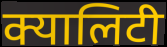
क्यालिटी